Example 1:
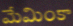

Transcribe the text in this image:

మేమింకా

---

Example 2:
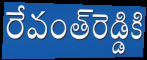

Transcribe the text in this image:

రేవంత్‌రెడ్డికి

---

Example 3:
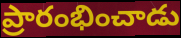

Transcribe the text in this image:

ప్రారంభించాడు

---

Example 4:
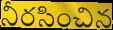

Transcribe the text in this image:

నీరసించిన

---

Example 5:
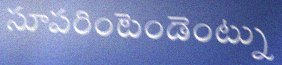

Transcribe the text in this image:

సూపరింటెండెంట్ను